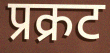
प्रक्रट